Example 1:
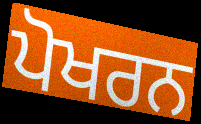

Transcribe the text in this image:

ਪੋਖਰਨ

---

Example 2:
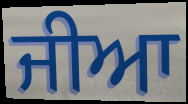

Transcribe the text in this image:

ਜੀਆ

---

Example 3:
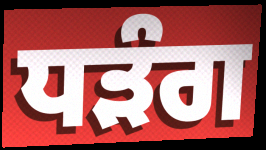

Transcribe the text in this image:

ਧੜੰਗ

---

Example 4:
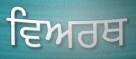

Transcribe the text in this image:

ਵਿਅਰਥ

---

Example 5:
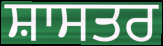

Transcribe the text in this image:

ਸ਼ਾਸਤਰ